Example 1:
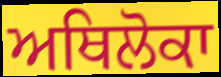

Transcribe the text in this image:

ਅਥਿਲੋਕਾ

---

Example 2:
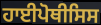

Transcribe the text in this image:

ਹਾਈਪੋਥੀਸਿਸ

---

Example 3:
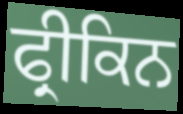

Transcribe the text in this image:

ਫ੍ਰੀਕਿਨ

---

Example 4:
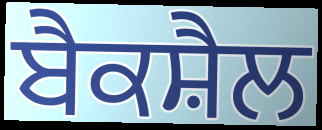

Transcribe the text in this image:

ਬੈਕਸ਼ੈਲ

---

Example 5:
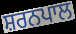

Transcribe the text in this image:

ਸ਼ਰਨਪਾਲ